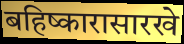
बहिष्कारासारखे